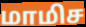
மாமிச